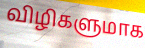
விழிகளுமாக